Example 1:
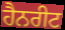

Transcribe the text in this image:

ਹੈਨਰੀਟ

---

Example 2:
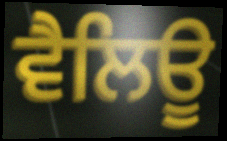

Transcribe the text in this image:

ਵੈਲਿਊ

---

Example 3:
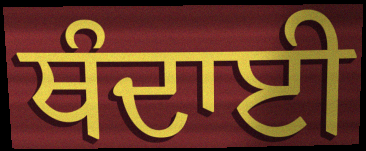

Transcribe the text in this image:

ਥੰਦਾਈ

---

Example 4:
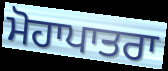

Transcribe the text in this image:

ਮੋਹਾਪਾਤਰਾ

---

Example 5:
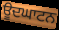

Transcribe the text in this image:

ਊਦਘਾਟਨ